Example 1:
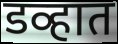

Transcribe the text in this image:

डव्हात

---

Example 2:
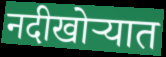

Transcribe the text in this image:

नदीखोर्‍यात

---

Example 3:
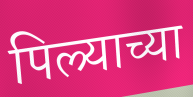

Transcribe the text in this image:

पिल्याच्या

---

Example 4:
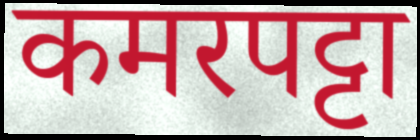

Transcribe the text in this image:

कमरपट्टा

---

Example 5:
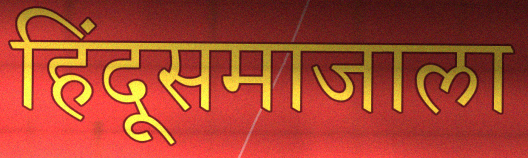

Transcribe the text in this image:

हिंदूसमाजाला